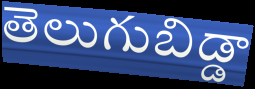
తెలుగుబిడ్డా